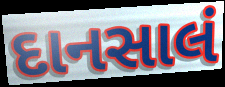
દાનસાલં